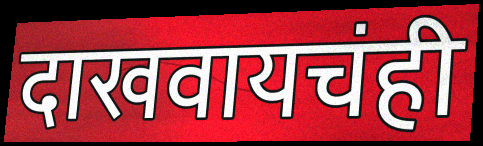
दाखवायचंही